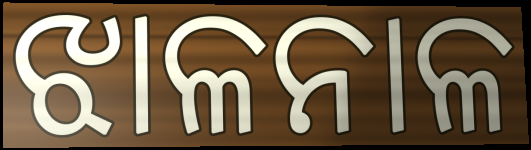
ଝାଳନାଳ